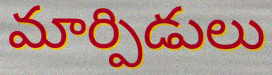
మార్పిడులు